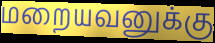
மறையவனுக்கு